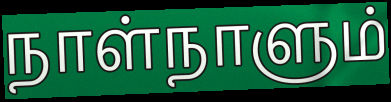
நாள்நாளும்